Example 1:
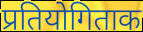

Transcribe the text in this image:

प्रतियोगिताक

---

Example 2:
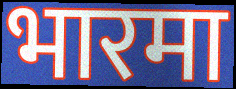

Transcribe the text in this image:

भारमा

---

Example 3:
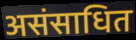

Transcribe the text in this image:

असंसाधित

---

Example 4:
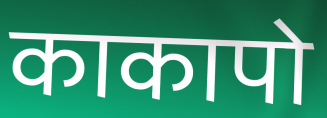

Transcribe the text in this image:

काकापो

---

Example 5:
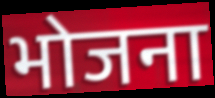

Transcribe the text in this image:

भोजना